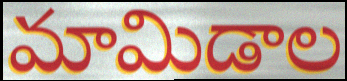
మామిడాల